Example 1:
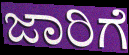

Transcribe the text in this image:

ಜಾರಿಗೆ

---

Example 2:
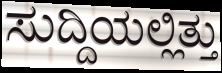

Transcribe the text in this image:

ಸುದ್ದಿಯಲ್ಲಿತ್ತು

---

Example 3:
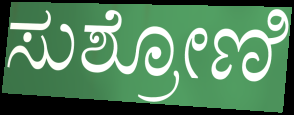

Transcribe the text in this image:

ಸುಶ್ರೋಣಿ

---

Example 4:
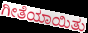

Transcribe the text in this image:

ಗೀತೆಯಾಯಿತು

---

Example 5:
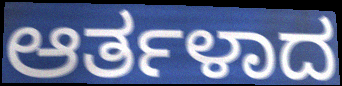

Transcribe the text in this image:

ಆರ್ತಳಾದ